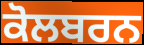
ਕੋਲਬਰਨ